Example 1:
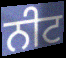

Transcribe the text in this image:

ਨੀਟ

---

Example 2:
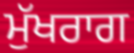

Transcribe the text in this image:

ਮੁੱਖਰਾਗ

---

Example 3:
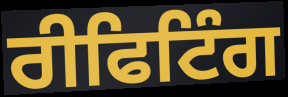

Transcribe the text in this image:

ਰੀਫਿਟਿੰਗ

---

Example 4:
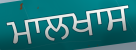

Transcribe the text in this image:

ਮਾਲਖਾਸ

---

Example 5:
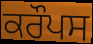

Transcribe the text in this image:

ਕਰੌਪਸ